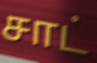
சாட்